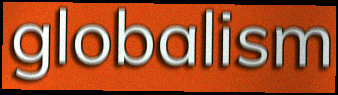
globalism